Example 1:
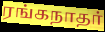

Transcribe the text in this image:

ரங்கநாதர்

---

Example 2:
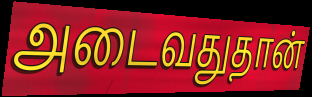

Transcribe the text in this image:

அடைவதுதான்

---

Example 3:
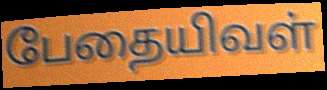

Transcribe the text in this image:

பேதையிவள்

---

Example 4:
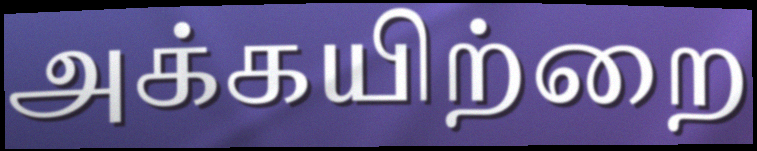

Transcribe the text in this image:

அக்கயிற்றை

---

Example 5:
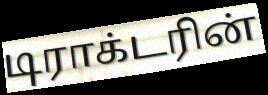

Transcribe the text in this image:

டிராக்டரின்